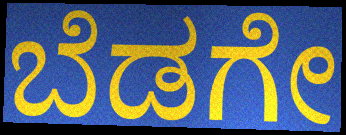
ಬೆಡಗೇ